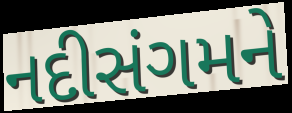
નદીસંગમને